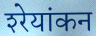
श्रेयांकन